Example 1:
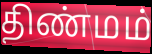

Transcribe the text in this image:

திண்மம்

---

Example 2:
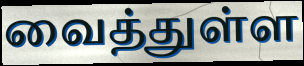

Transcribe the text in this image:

வைத்துள்ள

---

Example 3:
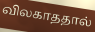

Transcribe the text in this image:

விலகாததால்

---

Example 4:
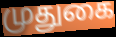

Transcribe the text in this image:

முதுகை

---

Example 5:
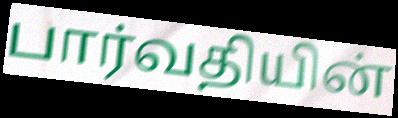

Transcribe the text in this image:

பார்வதியின்